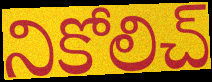
నికోలిచ్